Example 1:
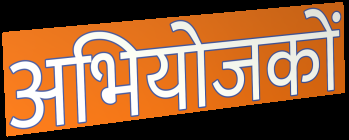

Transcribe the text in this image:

अभियोजकों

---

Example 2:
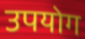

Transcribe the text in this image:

उपयोग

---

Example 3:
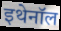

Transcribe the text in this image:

इथेनॉल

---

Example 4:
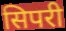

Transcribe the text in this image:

सिपरी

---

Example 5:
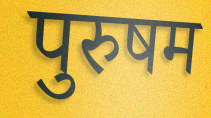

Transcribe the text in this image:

पुरुषम